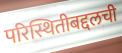
परिस्थितीबद्दलची